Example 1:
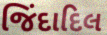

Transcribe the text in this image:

જિંદાદિલ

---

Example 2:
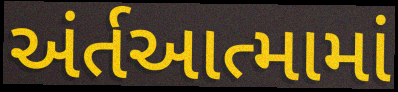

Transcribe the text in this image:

અંર્તઆત્મામાં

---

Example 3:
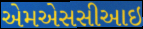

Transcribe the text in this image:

એમએસસીઆઇ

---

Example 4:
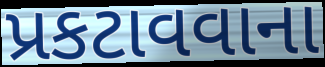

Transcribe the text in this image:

પ્રકટાવવાના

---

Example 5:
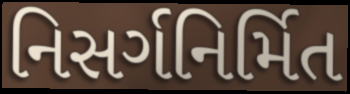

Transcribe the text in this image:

નિસર્ગનિર્મિત